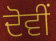
ਦੋਵੀਂ